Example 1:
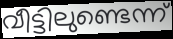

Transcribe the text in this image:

വീട്ടിലുണ്ടെന്ന്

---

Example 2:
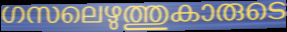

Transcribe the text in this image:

ഗസലെഴുത്തുകാരുടെ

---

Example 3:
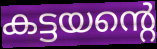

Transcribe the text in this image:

കട്ടയന്റെ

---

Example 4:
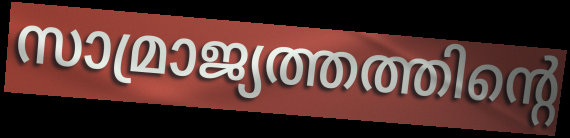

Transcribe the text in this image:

സാമ്രാജ്യത്തത്തിന്റെ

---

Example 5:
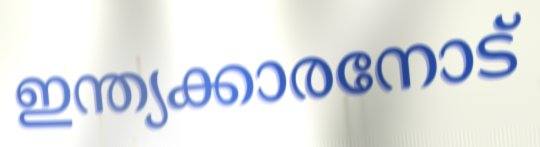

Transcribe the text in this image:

ഇന്ത്യക്കാരനോട്